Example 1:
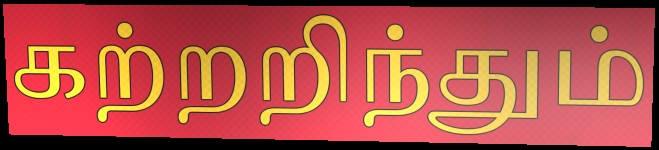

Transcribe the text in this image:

கற்றறிந்தும்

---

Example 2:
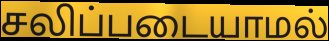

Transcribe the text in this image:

சலிப்படையாமல்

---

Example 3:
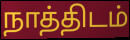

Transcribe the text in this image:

நாத்திடம்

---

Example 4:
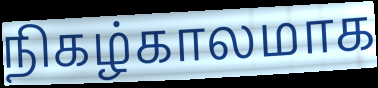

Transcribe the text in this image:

நிகழ்காலமாக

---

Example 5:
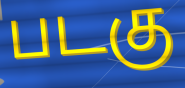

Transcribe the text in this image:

படகு